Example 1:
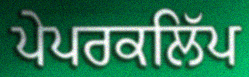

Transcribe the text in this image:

ਪੇਪਰਕਲਿੱਪ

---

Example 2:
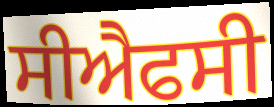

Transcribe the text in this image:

ਸੀਐਫਸੀ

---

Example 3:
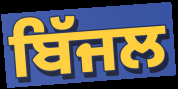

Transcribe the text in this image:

ਬਿੱਜਲ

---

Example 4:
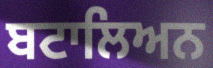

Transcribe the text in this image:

ਬਟਾਲਿਅਨ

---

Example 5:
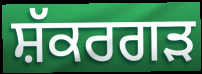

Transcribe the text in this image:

ਸ਼ੱਕਰਗੜ